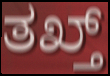
ತಖ್ತ್